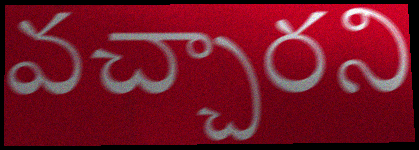
వచ్చారని